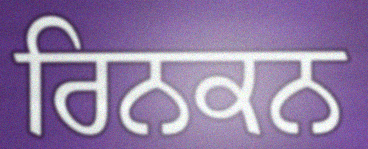
ਰਿਨਕਨ